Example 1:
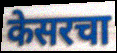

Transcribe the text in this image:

केसरचा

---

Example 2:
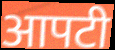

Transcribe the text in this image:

आपटी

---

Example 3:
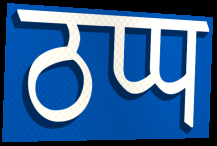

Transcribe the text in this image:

ठप्प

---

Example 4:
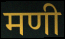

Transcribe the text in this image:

मणी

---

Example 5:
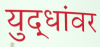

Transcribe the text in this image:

युद्धांवर